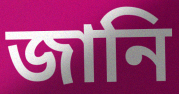
জানি